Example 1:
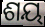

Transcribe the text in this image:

ଶୟ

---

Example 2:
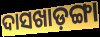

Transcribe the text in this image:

ଦାସଖାଡ଼ଙ୍ଗା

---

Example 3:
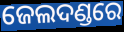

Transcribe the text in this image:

ଜେଲଦଣ୍ଡରେ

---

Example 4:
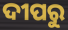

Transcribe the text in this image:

ଦୀପରୁ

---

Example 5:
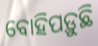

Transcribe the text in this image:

ବୋହିପଡ଼ୁଛି